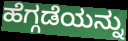
ಹೆಗ್ಗಡೆಯನ್ನು